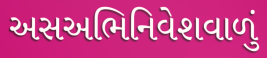
અસઅભિનિવેશવાળું